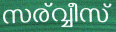
സര്വ്വീസ്